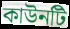
কাউনটি